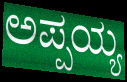
ಅಪ್ಪಯ್ಯ